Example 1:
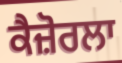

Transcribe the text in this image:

ਕੈਜ਼ੋਰਲਾ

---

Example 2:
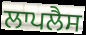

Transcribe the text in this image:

ਲਾਪਲੈਸ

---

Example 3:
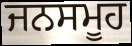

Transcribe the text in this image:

ਜਨਸਮੂਹ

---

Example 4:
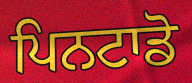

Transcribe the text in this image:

ਪਿਨਟਾਡੋ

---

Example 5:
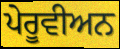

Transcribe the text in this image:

ਪੇਰੂਵੀਅਨ